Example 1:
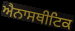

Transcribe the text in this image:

ਐਨਾਸਥੀਟਿਕ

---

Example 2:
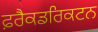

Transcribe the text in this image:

ਫ਼ਰੈਕਡਰਿਕਟਨ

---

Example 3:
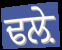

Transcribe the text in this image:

ਢਲ਼ੇ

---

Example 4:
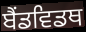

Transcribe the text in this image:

ਬੈਂਡਵਿਡਥ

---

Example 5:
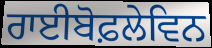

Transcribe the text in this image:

ਰਾਈਬੋਫ਼ਲੇਵਿਨ